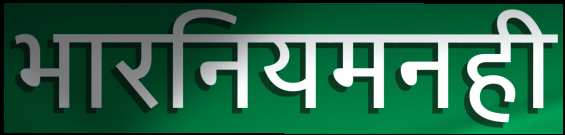
भारनियमनही